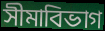
সীমাবিভাগ